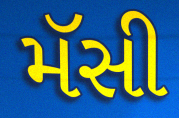
મૅસી